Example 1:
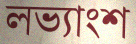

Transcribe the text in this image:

লভ্যাংশ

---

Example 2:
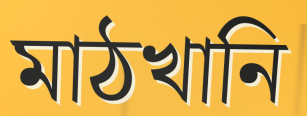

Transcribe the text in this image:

মাঠখানি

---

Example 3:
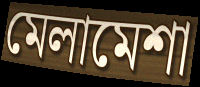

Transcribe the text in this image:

মেলামেশা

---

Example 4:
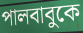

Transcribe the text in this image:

পালবাবুকে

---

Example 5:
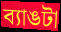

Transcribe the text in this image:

ব্যাঙটা